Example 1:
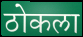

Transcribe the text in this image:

ठोकला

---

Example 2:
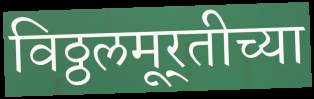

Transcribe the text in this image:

विठ्ठलमूर्तीच्या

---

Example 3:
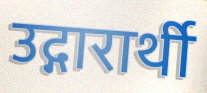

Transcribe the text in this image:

उद्गारार्थी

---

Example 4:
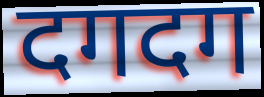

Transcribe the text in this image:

दगदग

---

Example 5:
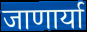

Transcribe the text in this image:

जाणार्या